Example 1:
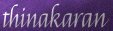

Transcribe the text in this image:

thinakaran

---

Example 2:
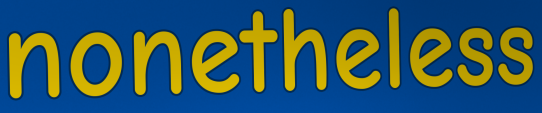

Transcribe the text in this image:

nonetheless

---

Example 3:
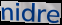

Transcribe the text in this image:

nidre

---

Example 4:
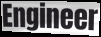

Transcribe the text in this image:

Engineer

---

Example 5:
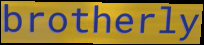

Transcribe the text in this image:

brotherly